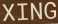
XING